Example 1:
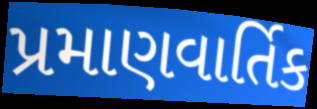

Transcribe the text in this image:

પ્રમાણવાર્તિક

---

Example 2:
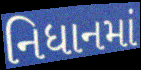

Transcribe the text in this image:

નિધાનમાં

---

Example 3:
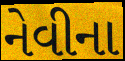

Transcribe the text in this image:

નેવીના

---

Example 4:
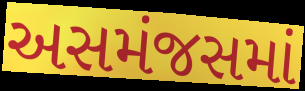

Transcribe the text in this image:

અસમંજસમાં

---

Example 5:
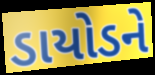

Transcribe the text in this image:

ડાયોડને